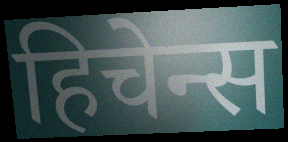
हिचेन्स